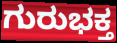
ಗುರುಭಕ್ತ